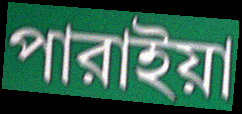
পারাইয়া